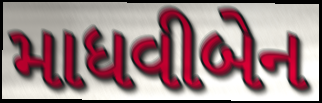
માધવીબેન